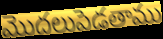
మొదలుపెడతాము